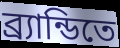
ব্র্যান্ডিতে